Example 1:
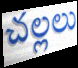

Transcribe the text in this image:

చల్లలు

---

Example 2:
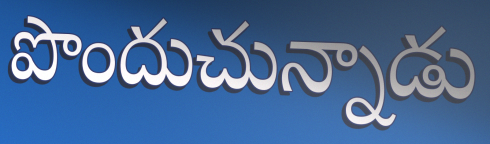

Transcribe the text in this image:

పొందుచున్నాడు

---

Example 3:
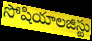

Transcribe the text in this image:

సోషియాలజిస్టు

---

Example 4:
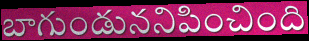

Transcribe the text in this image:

బాగుండుననిపించింది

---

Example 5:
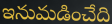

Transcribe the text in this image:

ఇనుమడించేది